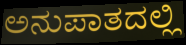
ಅನುಪಾತದಲ್ಲಿ